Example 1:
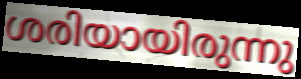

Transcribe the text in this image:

ശരിയായിരുന്നു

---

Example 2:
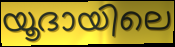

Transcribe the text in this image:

യൂദായിലെ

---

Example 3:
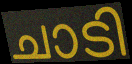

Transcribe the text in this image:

ചാടി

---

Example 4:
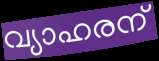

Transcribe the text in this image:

വ്യാഹരന്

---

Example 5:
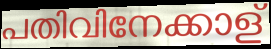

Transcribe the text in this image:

പതിവിനേക്കാള്